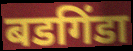
बडगिंडा